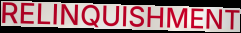
RELINQUISHMENT